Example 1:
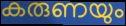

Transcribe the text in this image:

കരുണയും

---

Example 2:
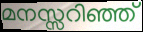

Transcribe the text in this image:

മനസ്സറിഞ്ഞ്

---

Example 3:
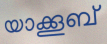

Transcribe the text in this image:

യാക്കൂബ്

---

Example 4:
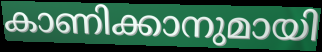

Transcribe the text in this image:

കാണിക്കാനുമായി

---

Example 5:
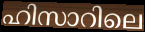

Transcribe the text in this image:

ഹിസാറിലെ